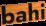
bahi